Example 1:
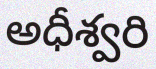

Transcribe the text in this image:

అధీశ్వరి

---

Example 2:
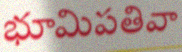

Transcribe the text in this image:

భూమిపతివా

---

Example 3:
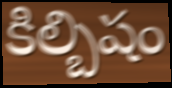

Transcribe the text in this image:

కిల్బిషం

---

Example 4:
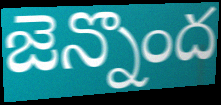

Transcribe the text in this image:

జెన్నొంద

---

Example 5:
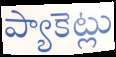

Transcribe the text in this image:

ప్యాకెట్లు